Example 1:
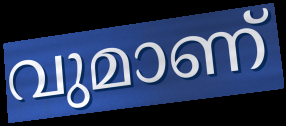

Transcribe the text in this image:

വുമാണ്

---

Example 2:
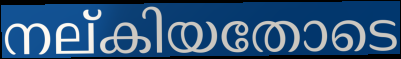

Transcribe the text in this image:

നല്കിയതോടെ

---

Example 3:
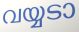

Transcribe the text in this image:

വയ്യടാ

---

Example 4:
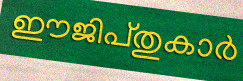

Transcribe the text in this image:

ഈജിപ്തുകാർ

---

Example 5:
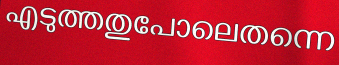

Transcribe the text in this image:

എടുത്തതുപോലെതന്നെ